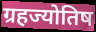
ग्रहज्योतिष